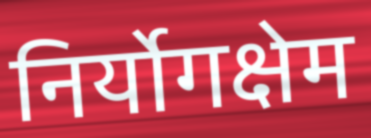
निर्योगक्षेम